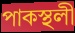
পাকস্থলী